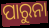
ପାରୁନା